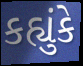
કહ્યુંકે